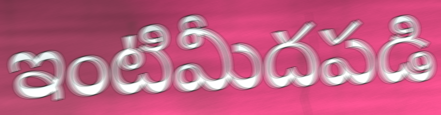
ఇంటిమీదపడి